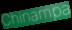
Chinampa